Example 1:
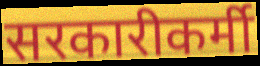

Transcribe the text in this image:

सरकारीकर्मी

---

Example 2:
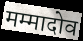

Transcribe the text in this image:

मम्मादोव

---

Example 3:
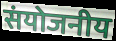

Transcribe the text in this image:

संयोजनीय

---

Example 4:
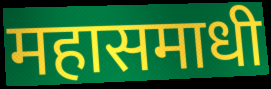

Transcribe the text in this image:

महासमाधी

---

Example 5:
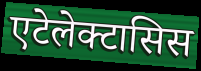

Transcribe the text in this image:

एटेलेक्टासिस